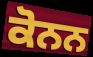
ਕੋਨਨ